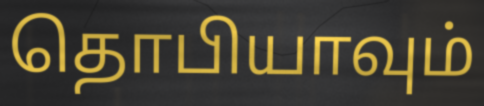
தொபியாவும்